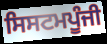
ਸਿਸਟਮਪੂੰਜੀ